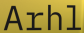
Arhl